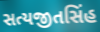
સત્યજીતસિંહ